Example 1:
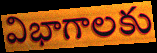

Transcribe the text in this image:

విభాగాలకు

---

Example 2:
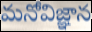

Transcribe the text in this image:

మనోవిజ్ఞాన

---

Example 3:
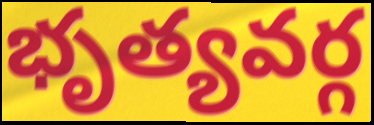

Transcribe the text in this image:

భృత్యవర్గ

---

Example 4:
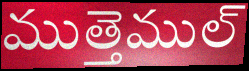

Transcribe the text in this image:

ముత్తెముల్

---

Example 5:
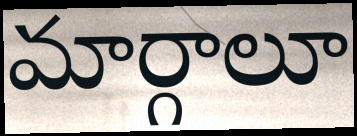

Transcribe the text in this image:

మార్గాలూ